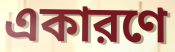
একারণে